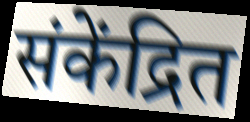
संकेंद्रित